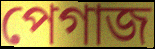
পেগাজ